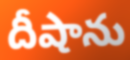
దీషాను